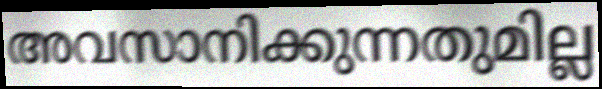
അവസാനിക്കുന്നതുമില്ല